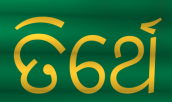
ତିର୍ଥେ